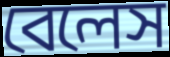
বেলেস